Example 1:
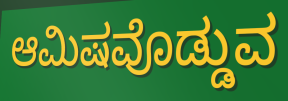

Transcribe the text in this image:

ಆಮಿಷವೊಡ್ಡುವ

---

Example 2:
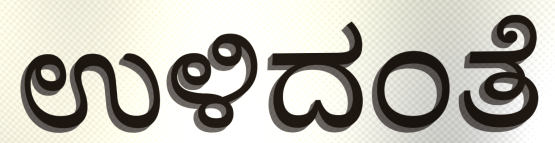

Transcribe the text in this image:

ಉಳಿದಂತೆ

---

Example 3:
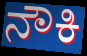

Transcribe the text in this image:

ನೌಕಿ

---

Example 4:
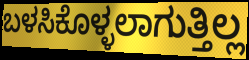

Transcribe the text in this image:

ಬಳಸಿಕೊಳ್ಳಲಾಗುತ್ತಿಲ್ಲ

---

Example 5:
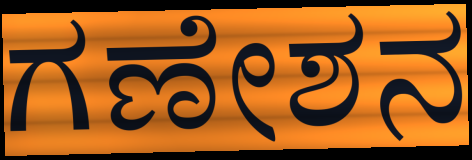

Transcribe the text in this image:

ಗಣೇಶನ